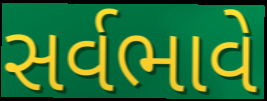
સર્વભાવે